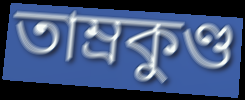
তাম্রকুণ্ড